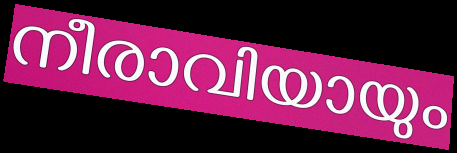
നീരാവിയായും